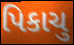
પિકાચુ